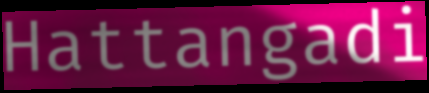
Hattangadi